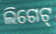
ଲିଗେଟ୍